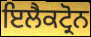
ਇਲੈਕਟ੍ਰੋਨ